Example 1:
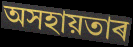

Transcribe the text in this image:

অসহায়তাৰ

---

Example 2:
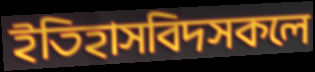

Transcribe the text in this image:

ইতিহাসবিদসকলে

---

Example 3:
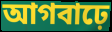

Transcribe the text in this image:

আগবাঢ়ে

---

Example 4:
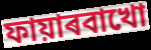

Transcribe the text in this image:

ফায়াৰবাখো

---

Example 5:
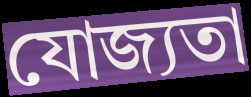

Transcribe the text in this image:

যোজ্যতা